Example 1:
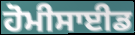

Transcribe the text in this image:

ਹੋਮੀਸਾਈਡ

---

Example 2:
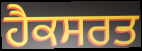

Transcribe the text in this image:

ਹੈਕਸਰਤ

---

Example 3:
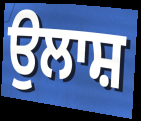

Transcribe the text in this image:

ਉਲਾਸ਼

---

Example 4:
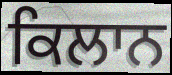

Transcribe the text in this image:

ਕਿਲਾਨ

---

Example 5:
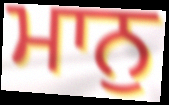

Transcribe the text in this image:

ਮਾਨੁ